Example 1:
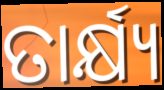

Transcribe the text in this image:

ତାର୍କ୍ଷ୍ୟ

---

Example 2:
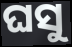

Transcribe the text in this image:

ଘସୁ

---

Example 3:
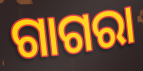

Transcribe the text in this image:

ଗାଗରା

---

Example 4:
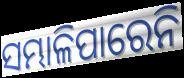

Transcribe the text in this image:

ସମ୍ଭାଳିପାରେନି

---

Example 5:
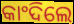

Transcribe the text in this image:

କାଂଦିଲେ